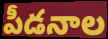
పీడనాల